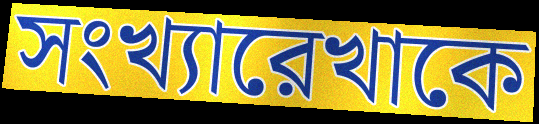
সংখ্যারেখাকে